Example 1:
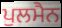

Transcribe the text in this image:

ਪੁਲਮੈਨ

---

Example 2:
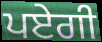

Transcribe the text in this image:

ਪਏਗੀ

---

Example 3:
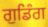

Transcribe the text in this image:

ਗੁਡਿੰਗ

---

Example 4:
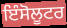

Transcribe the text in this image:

ਇੰਸੋਲੂਟਰ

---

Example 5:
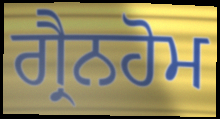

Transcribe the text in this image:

ਗ੍ਰੈਨਹੋਮ